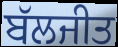
ਬੱਲਜੀਤ